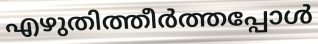
എഴുതിത്തീർത്തപ്പോൾ